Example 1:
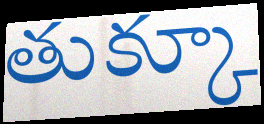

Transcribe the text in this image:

తుక్కూ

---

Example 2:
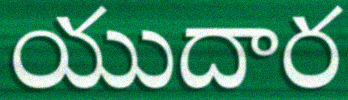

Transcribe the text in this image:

యుదార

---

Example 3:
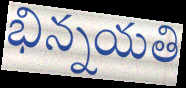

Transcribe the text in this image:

భిన్నయతి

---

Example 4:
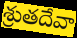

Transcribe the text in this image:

శ్రుతదేవా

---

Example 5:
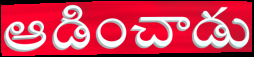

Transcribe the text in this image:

ఆడించాడు